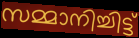
സമ്മാനിച്ചിട്ട്